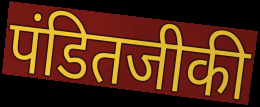
पंडितजीकी